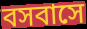
বসবাসে